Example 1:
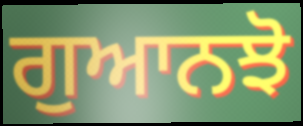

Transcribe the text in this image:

ਗੁਆਨਝੋ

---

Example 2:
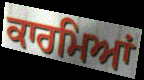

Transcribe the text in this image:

ਕਾਰਮਿਆਂ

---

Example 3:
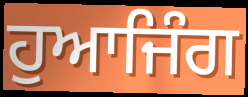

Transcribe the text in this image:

ਹੁਆਜਿੰਗ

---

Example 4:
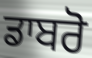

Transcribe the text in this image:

ਡਾਬਰੋ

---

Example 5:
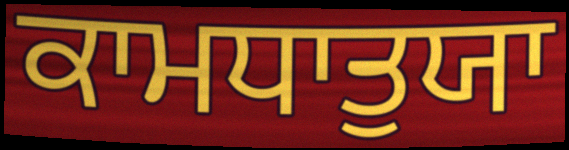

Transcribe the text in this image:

ਕਾਮਧਾਤੁਯਾ